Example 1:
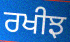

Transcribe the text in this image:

ਰਖੀਝ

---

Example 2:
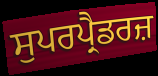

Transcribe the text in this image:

ਸੁਪਰਪ੍ਰੈਡਰਜ਼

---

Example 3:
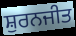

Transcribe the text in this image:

ਸ਼ੁਰਨਜੀਤ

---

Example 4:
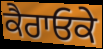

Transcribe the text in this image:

ਕੈਰਾਓਕੇ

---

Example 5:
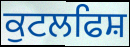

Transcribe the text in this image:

ਕੁਟਲਫਿਸ਼